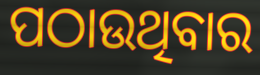
ପଠାଉଥିବାର